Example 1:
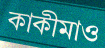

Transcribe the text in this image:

কাকীমাও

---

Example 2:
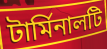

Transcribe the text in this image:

টার্মিনালটি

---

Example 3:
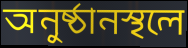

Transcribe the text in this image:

অনুষ্ঠানস্থলে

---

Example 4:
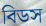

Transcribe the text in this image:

বিডস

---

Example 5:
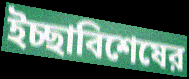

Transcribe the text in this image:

ইচ্ছাবিশেষের